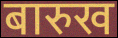
बारुख